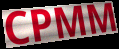
CPMM